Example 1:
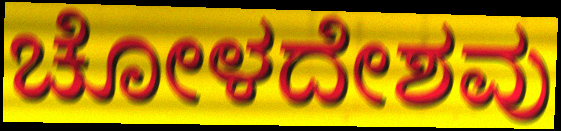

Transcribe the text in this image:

ಚೋಳದೇಶವು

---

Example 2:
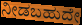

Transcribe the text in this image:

ನೀಡಬಹುದೇ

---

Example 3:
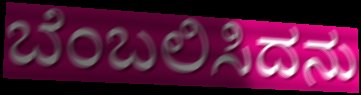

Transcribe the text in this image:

ಬೆಂಬಲಿಸಿದನು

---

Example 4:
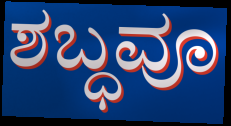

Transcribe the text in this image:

ಶಬ್ಧವೂ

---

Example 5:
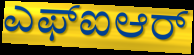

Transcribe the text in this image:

ಎಫ್ಐಆರ್